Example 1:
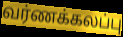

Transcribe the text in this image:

வர்ணக்கலப்பு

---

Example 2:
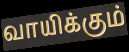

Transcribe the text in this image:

வாயிக்கும்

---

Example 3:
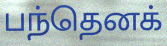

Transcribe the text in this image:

பந்தெனக்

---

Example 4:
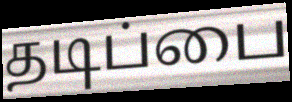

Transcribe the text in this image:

தடிப்பை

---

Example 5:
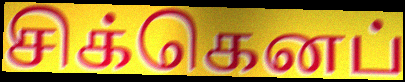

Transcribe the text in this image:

சிக்கெனப்